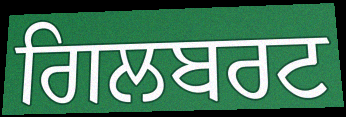
ਗਿਲਬਰਟ